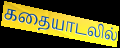
கதையாடலில்